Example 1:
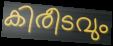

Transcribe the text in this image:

കിരീടവും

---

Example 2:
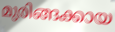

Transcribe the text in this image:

മുരിങ്ങക്കായ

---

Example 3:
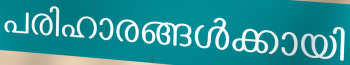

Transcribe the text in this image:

പരിഹാരങ്ങൾക്കായി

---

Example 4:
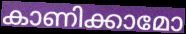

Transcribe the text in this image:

കാണിക്കാമോ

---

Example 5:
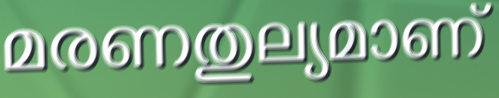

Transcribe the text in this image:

മരണതുല്യമാണ്